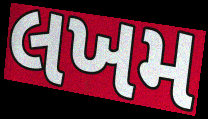
લખમ